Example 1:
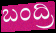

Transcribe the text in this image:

ಬಂದ್ರಿ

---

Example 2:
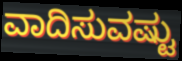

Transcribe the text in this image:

ವಾದಿಸುವಷ್ಟು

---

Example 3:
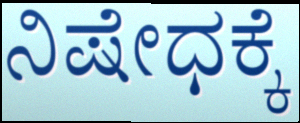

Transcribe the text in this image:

ನಿಷೇಧಕ್ಕೆ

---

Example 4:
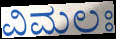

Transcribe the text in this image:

ವಿಮಲಃ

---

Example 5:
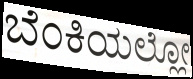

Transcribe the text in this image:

ಬೆಂಕಿಯಲ್ಲೋ